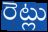
రెట్లు